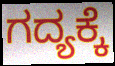
ಗದ್ಯಕ್ಕೆ